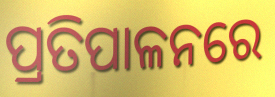
ପ୍ରତିପାଳନରେ